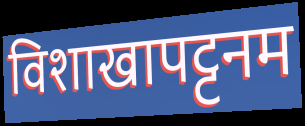
विशाखापट्टनम